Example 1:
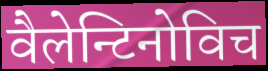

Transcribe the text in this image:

वैलेन्टिनोविच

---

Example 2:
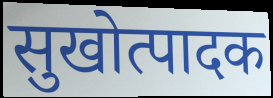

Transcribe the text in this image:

सुखोत्पादक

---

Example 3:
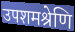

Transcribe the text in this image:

उपशमश्रेणि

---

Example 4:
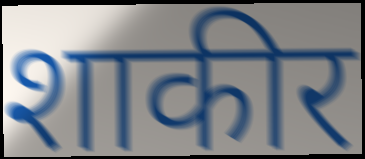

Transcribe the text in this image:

शाकीर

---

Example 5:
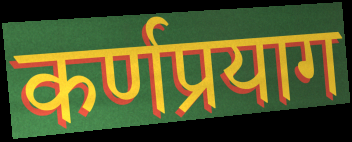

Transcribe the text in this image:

कर्णप्रयाग